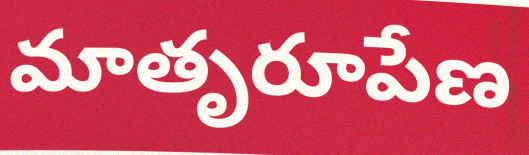
మాతృరూపేణ